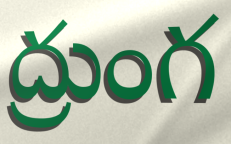
ద్రుంగ